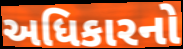
અધિકારનો